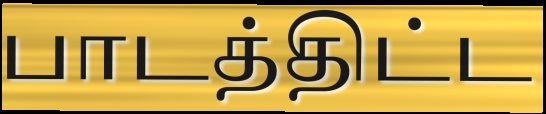
பாடத்திட்ட